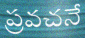
ప్రవచనే